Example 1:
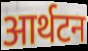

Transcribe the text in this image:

आर्थटन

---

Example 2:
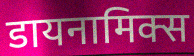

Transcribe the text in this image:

डायनामिक्स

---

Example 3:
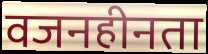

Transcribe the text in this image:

वजनहीनता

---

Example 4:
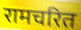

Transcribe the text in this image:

रामचरित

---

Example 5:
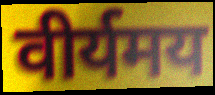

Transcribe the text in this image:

वीर्यमय